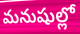
మనుషుల్లో